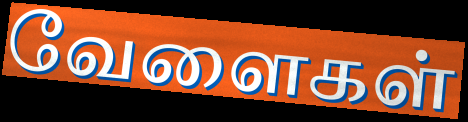
வேளைகள்